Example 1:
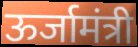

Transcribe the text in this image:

ऊर्जामंत्री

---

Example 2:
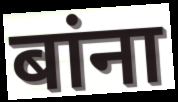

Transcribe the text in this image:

बांना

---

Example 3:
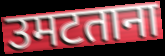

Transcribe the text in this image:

उमटताना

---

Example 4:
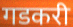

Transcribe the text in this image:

गडकरी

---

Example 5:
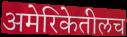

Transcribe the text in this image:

अमेरिकेतीलच